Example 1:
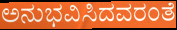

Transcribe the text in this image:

ಅನುಭವಿಸಿದವರಂತೆ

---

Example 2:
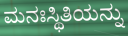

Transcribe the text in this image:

ಮನಃಸ್ಥಿತಿಯನ್ನು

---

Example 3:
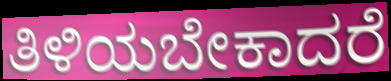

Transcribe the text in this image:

ತಿಳಿಯಬೇಕಾದರೆ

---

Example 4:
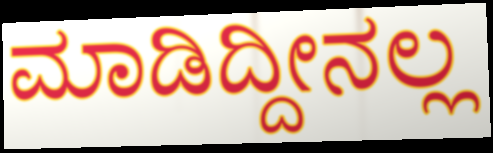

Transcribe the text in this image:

ಮಾಡಿದ್ದೀನಲ್ಲ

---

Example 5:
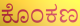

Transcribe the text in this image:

ಕೊಂಕಣ